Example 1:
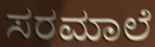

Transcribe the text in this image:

ಸರಮಾಲೆ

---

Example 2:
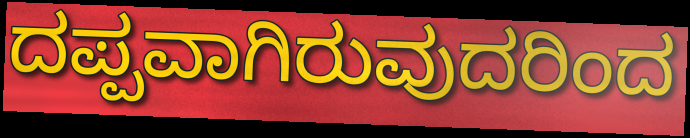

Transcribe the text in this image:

ದಪ್ಪವಾಗಿರುವುದರಿಂದ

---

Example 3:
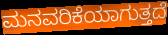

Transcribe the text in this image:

ಮನವರಿಕೆಯಾಗುತ್ತದೆ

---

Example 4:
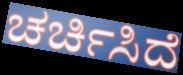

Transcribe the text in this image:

ಚರ್ಚಿಸಿದೆ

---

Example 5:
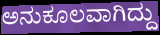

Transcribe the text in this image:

ಅನುಕೂಲವಾಗಿದ್ದು